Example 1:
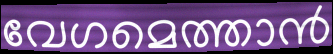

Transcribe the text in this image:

വേഗമെത്താൻ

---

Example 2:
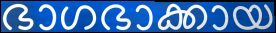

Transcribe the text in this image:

ഭാഗഭാക്കായ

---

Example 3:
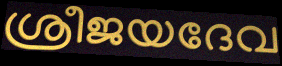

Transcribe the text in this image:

ശ്രീജയദേവ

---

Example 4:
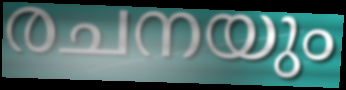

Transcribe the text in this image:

രചനയും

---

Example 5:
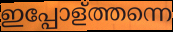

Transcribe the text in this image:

ഇപ്പോള്ത്തന്നെ